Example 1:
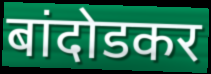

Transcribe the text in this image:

बांदोडकर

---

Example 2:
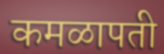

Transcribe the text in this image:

कमळापती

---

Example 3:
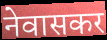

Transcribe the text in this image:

नेवासकर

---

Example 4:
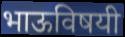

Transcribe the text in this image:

भाऊविषयी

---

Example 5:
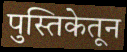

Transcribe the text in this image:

पुस्तिकेतून